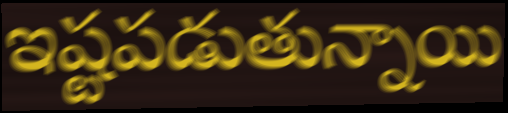
ఇష్టపడుతున్నాయి